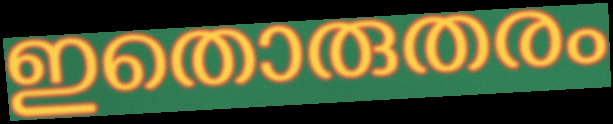
ഇതൊരുതരം